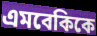
এমবেকিকে